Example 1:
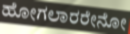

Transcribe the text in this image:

ಹೋಗಲಾರರೇನೋ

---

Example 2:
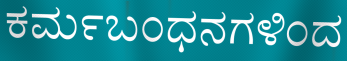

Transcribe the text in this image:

ಕರ್ಮಬಂಧನಗಳಿಂದ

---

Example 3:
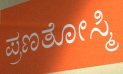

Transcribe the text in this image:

ಪ್ರಣತೋಸ್ಮಿ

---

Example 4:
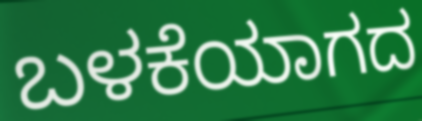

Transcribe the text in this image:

ಬಳಕೆಯಾಗದ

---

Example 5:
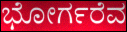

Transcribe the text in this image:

ಭೋರ್ಗರೆವ